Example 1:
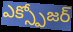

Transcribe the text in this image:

ఎక్స్పోజర్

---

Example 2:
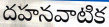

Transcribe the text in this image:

దహనవాటిక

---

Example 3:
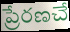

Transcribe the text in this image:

ప్రేరణచే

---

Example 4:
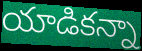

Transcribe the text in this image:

యాడికన్నా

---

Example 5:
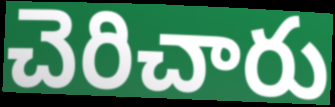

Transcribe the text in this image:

చెరిచారు